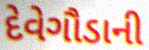
દેવેગૌડાની